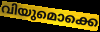
വിയുമൊക്കെ